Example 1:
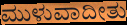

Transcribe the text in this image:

ಮುಳುವಾದೀತು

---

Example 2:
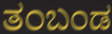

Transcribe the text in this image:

ತಂಬಂಡ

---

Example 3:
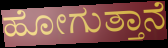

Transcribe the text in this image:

ಹೋಗುತ್ತಾನೆ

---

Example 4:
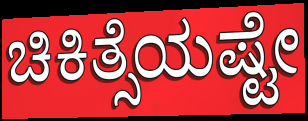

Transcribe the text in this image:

ಚಿಕಿತ್ಸೆಯಷ್ಟೇ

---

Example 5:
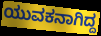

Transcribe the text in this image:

ಯುವಕನಾಗಿದ್ದ